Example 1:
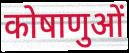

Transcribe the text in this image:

कोषाणुओं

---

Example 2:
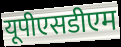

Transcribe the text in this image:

यूपीएसडीएम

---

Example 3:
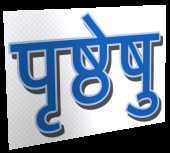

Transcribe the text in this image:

पृष्ठेषु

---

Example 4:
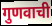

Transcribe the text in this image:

गुणवाची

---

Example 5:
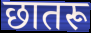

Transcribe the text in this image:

छातरू